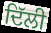
ਦਿੱਲੀ